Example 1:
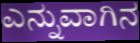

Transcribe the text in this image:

ಎನ್ನುವಾಗಿನ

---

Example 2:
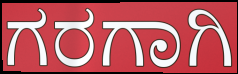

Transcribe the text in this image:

ಗರಗಾಗಿ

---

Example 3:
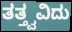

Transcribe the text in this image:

ತತ್ತ್ವವಿದು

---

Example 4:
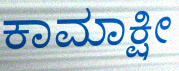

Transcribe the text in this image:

ಕಾಮಾಕ್ಷೀ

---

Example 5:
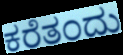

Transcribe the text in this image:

ಕರೆತಂದು